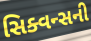
સિક્વન્સની